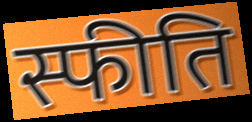
स्‍फीति